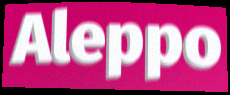
Aleppo